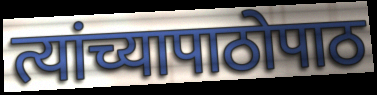
त्यांच्यापाठोपाठ